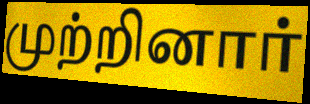
முற்றினார்